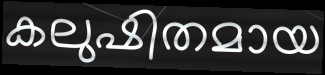
കലുഷിതമായ